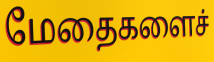
மேதைகளைச்